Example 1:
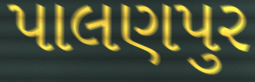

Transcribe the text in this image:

પાલણપુર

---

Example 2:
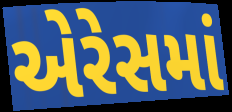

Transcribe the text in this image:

એરેસમાં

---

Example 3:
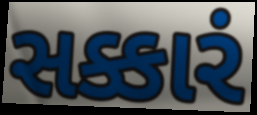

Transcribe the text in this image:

સક્કારં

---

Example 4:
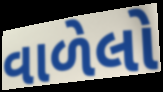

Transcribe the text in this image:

વાળેલો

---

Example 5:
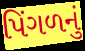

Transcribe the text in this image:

પિંગળનું